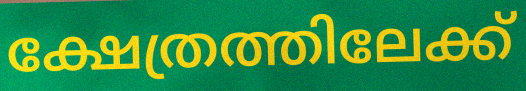
ക്ഷേത്രത്തിലേക്ക്